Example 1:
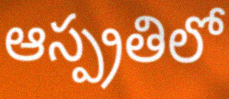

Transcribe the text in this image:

ఆస్ప్రతిలో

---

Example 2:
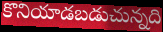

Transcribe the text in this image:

కొనియాడబడుచున్నది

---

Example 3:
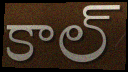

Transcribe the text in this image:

కాల్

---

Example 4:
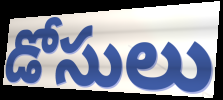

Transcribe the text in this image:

డోసులు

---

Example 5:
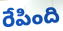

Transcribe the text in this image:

రేపింది